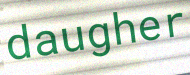
daugher